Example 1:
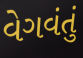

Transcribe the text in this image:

વેગવંતું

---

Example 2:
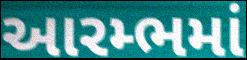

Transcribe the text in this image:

આરમ્ભમાં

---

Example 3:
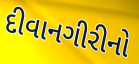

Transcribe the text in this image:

દીવાનગીરીનો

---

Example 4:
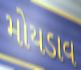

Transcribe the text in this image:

મોયડાવ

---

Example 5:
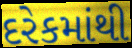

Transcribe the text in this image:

દરેકમાંથી